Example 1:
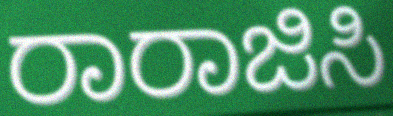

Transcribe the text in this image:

ರಾರಾಜಿಸಿ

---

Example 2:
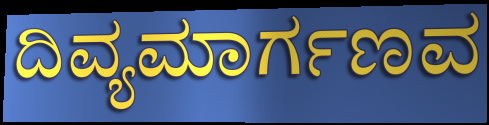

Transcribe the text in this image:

ದಿವ್ಯಮಾರ್ಗಣವ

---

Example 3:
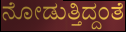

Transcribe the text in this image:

ನೋಡುತ್ತಿದ್ದಂತೆ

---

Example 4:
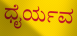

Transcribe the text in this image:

ಧೈರ್ಯವ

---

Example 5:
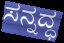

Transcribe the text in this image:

ಸನ್ನದ್ಧ